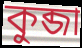
কুব্জা